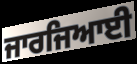
ਜਾਰਜਿਆਈ